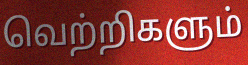
வெற்றிகளும்